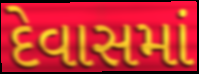
દેવાસમાં